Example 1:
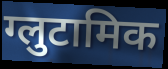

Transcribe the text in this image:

ग्लुटामिक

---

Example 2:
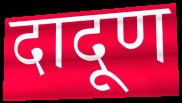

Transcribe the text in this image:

दादूण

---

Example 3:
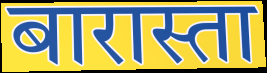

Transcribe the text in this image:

बारास्ता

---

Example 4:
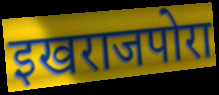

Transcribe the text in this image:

इखराजपोरा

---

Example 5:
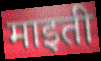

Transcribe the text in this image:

माइती